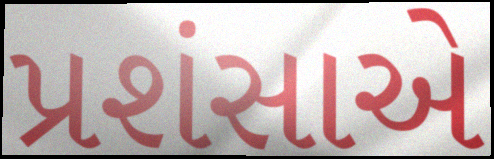
પ્રશંસાએ